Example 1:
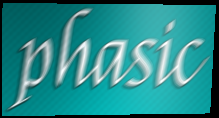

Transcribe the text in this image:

phasic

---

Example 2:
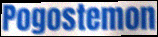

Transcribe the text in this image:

Pogostemon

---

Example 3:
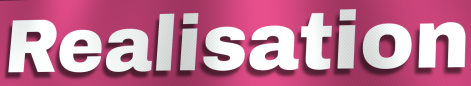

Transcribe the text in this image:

Realisation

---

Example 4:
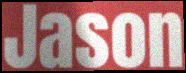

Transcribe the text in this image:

Jason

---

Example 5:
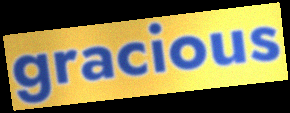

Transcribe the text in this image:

gracious